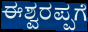
ಈಶ್ವರಪ್ಪಗೆ